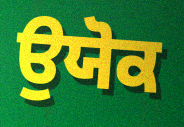
ਉਯੋਕ